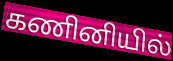
கணினியில்